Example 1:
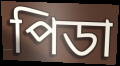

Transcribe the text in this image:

পিডা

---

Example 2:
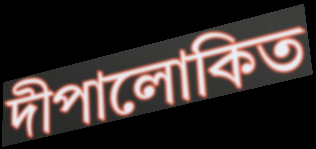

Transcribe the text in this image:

দীপালোকিত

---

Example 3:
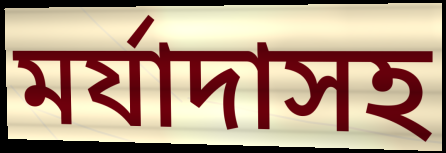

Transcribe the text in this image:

মর্যাদাসহ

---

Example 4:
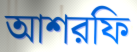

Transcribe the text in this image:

আশরফি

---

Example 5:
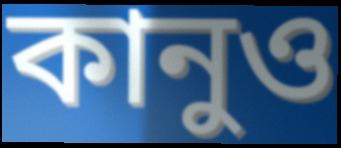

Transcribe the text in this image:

কানুও